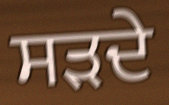
ਸੜਦੇ